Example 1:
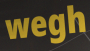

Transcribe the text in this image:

wegh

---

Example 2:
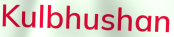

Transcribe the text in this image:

Kulbhushan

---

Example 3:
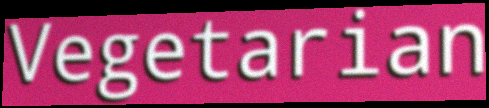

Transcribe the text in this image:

Vegetarian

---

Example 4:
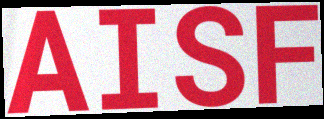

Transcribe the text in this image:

AISF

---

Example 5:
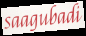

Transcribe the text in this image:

saagubadi